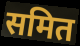
समित